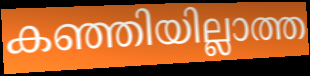
കഞ്ഞിയില്ലാത്ത